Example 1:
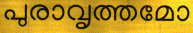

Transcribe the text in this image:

പുരാവൃത്തമോ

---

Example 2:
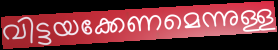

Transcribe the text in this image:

വിട്ടയക്കേണമെന്നുള്ള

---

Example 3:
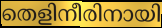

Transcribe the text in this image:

തെളിനീരിനായി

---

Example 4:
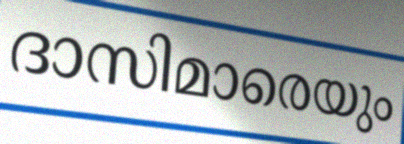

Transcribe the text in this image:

ദാസിമാരെയും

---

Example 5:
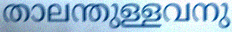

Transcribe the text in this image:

താലന്തുള്ളവനു